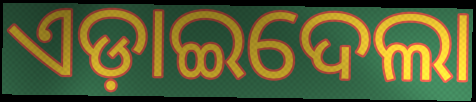
ଏଡ଼ାଇଦେଲା